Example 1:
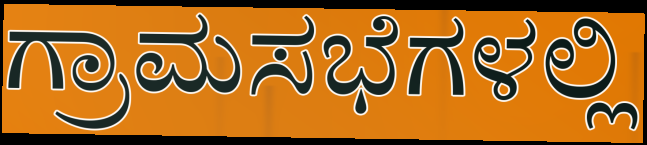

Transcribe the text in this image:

ಗ್ರಾಮಸಭೆಗಳಲ್ಲಿ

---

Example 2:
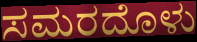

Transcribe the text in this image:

ಸಮರದೊಳು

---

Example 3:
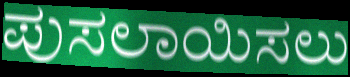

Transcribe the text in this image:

ಪುಸಲಾಯಿಸಲು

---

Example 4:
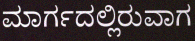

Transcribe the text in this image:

ಮಾರ್ಗದಲ್ಲಿರುವಾಗ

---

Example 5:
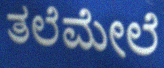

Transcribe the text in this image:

ತಲೆಮೇಲೆ